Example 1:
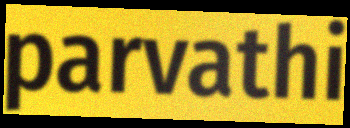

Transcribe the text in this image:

parvathi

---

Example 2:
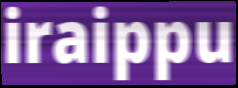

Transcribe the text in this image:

iraippu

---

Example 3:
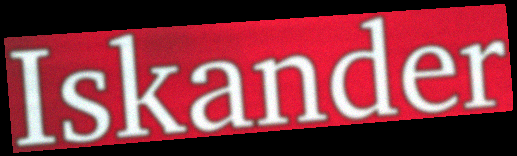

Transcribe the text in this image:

Iskander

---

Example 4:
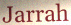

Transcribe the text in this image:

Jarrah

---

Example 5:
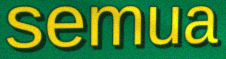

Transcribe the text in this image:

semua